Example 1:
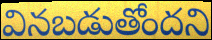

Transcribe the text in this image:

వినబడుతోందని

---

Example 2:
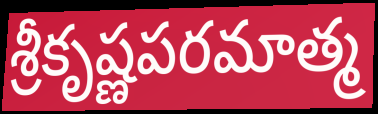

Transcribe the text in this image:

శ్రీకృష్ణపరమాత్మ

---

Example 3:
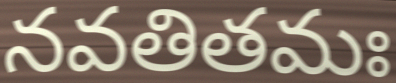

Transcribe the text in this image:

నవతితమః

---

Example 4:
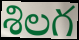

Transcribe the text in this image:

శిలగ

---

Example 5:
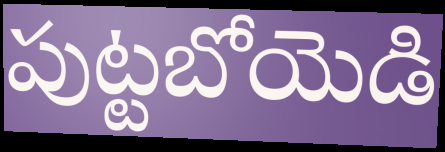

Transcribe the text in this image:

పుట్టబోయెడి